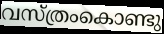
വസ്ത്രംകൊണ്ടു